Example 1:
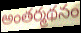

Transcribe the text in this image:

అంతర్మథనం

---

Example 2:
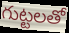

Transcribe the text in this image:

గుట్టలతో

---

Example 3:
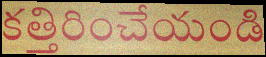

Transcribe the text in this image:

కత్తిరించేయండి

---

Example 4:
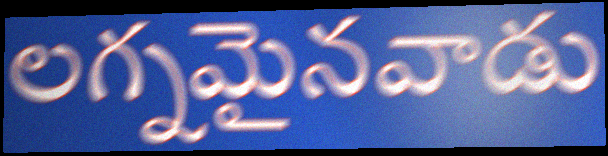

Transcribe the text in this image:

లగ్నమైనవాడు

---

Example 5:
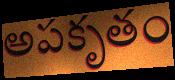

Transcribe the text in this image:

అపకృతం